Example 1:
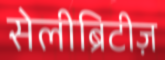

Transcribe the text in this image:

सेलीब्रिटीज़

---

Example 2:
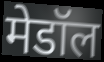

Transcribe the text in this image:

मेडॉल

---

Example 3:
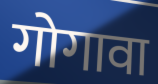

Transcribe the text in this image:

गोगावा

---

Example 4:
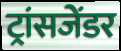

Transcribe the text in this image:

ट्रांसजेंडर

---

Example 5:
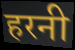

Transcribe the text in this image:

हरनी